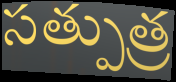
సత్పుత్ర